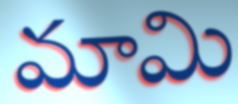
మామి